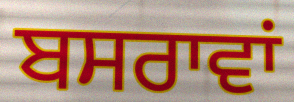
ਬਸਰਾਵਾਂ